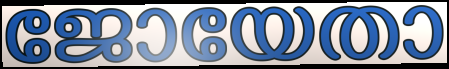
ജോയേതാ